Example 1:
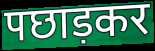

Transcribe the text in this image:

पछाड़कर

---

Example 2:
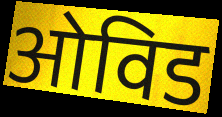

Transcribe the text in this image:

ओविड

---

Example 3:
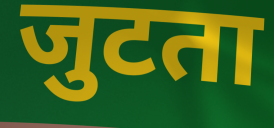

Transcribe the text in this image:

जुटता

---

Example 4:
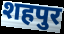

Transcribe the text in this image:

शहपुर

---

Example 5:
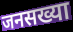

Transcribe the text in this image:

जनसख्या